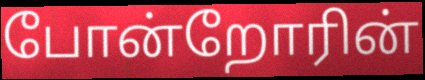
போன்றோரின்